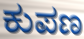
ಕುಪಣ